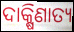
ଦାକ୍ଷିଣାତ୍ୟ